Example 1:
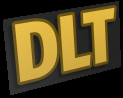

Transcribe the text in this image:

DLT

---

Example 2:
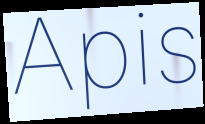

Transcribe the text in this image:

Apis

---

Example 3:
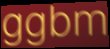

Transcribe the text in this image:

ggbm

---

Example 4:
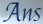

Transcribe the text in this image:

Ans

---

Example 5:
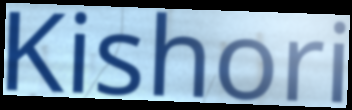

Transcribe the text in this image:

Kishori